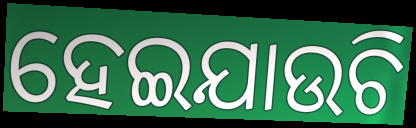
ହେଇଯାଉଚି